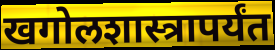
खगोलशास्त्रापर्यंत